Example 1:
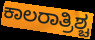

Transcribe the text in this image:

ಕಾಲರಾತ್ರಿಶ್ಚ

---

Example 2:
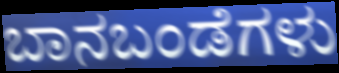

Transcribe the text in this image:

ಬಾನಬಂಡೆಗಳು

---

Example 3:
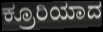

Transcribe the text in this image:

ಕ್ರೂರಿಯಾದ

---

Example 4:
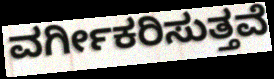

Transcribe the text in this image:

ವರ್ಗೀಕರಿಸುತ್ತವೆ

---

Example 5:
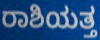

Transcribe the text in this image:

ರಾಶಿಯತ್ತ